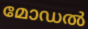
മോഡൽ